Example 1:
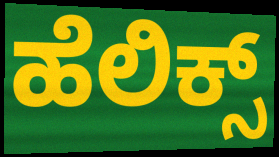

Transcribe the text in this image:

ಹೆಲಿಕ್ಸ್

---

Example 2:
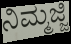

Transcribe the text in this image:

ನಿಮ್ಮಜ್ಜಿ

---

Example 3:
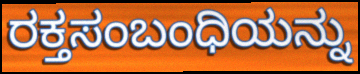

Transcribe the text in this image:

ರಕ್ತಸಂಬಂಧಿಯನ್ನು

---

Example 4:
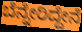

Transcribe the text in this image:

ಬೆನ್ನೇರಿದ್ದೇನೆ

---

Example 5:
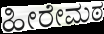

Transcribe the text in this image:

ಹೀರೇಮಠ